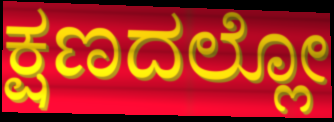
ಕ್ಷಣದಲ್ಲೋ